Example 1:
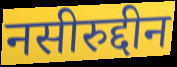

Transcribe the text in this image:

नसीरुद्दीन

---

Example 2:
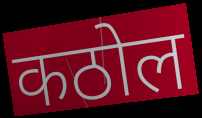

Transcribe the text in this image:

कठोल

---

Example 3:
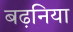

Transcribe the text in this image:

बढ़निया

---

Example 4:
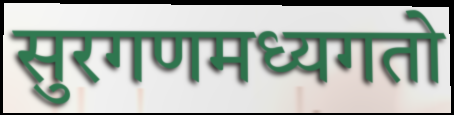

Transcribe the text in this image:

सुरगणमध्यगतो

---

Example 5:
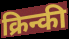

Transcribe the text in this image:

क्रिन्की